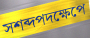
সশব্দপদক্ষেপে